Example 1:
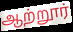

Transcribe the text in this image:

ஆற்றூர்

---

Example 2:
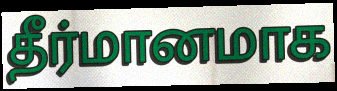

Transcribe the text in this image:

தீர்மானமாக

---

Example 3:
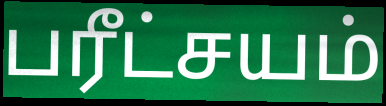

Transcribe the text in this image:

பரீட்சயம்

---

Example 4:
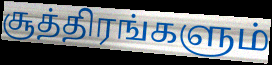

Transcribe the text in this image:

சூத்திரங்களும்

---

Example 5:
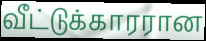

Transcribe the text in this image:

வீட்டுக்காரரான